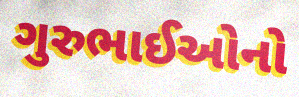
ગુરુભાઈઓનો